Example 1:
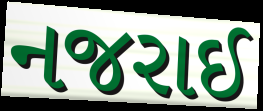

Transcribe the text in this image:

નજરાઈ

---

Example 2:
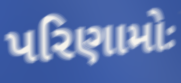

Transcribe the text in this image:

પરિણામોઃ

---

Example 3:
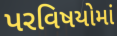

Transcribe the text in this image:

પરવિષયોમાં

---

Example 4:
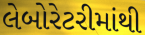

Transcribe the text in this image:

લેબોરેટરીમાંથી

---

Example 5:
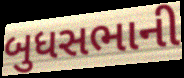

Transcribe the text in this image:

બુધસભાની